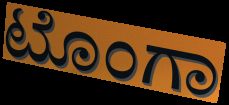
ಟೊಂಗಾ